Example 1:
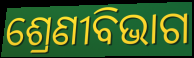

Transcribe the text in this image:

ଶ୍ରେଣୀବିଭାଗ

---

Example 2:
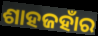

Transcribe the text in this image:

ଶାହଜହାଁର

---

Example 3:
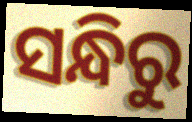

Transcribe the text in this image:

ସନ୍ଧିରୁ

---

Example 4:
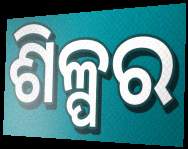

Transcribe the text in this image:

ଶିଳ୍ପର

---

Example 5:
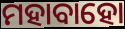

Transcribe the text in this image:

ମହାବାହୋ